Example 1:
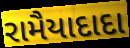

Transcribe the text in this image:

રામૈયાદાદા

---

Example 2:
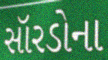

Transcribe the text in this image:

સૉરડોના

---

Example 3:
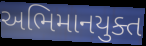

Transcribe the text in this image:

અભિમાનયુક્ત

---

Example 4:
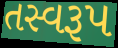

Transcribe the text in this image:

તસ્વરૂપ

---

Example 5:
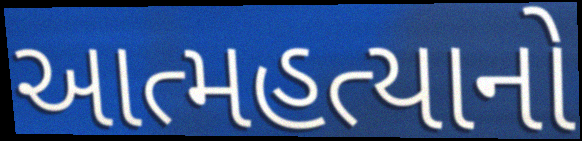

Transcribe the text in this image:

આત્મહત્યાનો